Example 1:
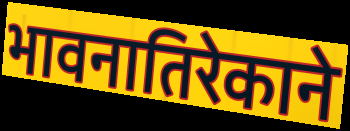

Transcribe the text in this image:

भावनातिरेकाने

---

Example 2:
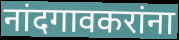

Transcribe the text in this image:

नांदगावकरांना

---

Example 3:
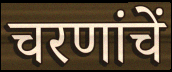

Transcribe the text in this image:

चरणांचें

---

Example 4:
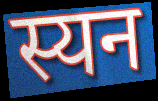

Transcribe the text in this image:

स्यन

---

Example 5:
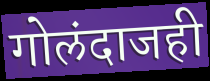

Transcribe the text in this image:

गोलंदाजही